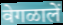
वेगळालें